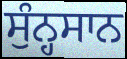
ਸੁੰਨ੍ਹਸਾਨ